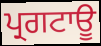
ਪ੍ਰਗਟਾਊ